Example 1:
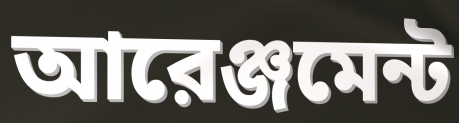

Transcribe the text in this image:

আরেঞ্জমেন্ট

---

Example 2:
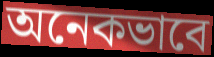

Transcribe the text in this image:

অনেকভাবে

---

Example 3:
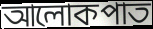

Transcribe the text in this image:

আলোকপাত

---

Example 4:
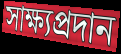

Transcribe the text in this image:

সাক্ষ্যপ্রদান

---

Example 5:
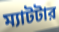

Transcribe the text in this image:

ম্যাটটার